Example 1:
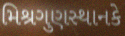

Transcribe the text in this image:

મિશ્રગુણસ્થાનકે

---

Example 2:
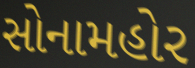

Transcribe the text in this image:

સોનામહોર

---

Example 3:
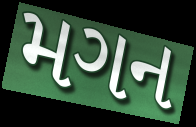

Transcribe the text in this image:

મગન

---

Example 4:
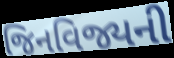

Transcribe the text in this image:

જિનવિજ્યની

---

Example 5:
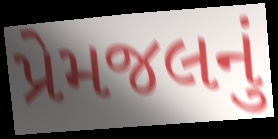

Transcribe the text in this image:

પ્રેમજલનું